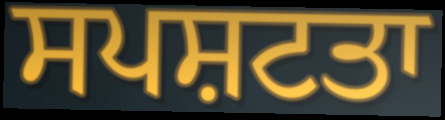
ਸਪਸ਼ਟਤਾ